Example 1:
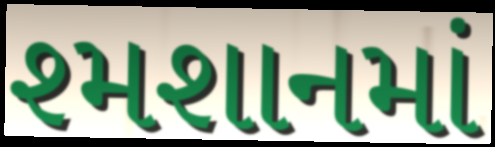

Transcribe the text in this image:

શ્મશાનમાં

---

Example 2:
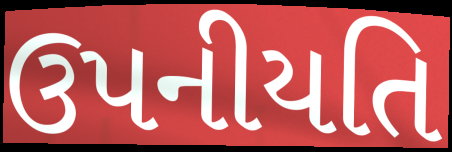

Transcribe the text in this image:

ઉપનીયતિ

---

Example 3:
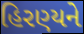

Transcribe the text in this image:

હિરણ્યને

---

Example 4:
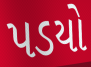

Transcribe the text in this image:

પડયો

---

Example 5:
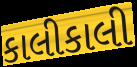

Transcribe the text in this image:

કાલીકાલી